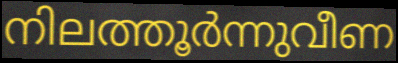
നിലത്തൂർന്നുവീണ